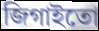
জিগাইতো